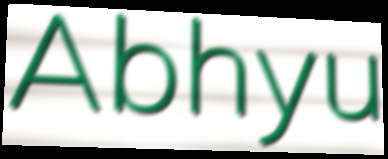
Abhyu